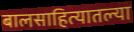
बालसाहित्यातल्या